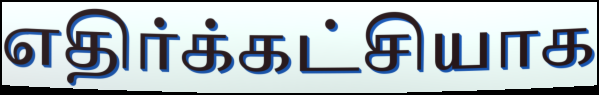
எதிர்க்கட்சியாக